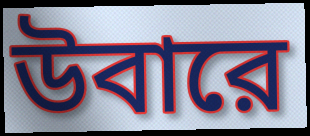
উবারে